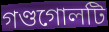
গণ্ডগোলটি